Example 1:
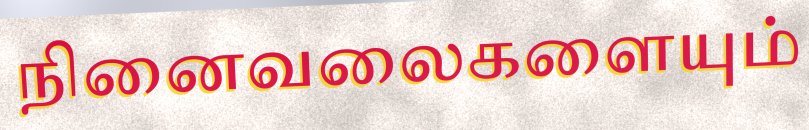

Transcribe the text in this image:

நினைவலைகளையும்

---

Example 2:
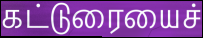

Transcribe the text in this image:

கட்டுரையைச்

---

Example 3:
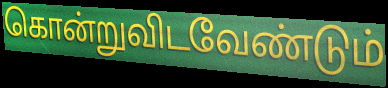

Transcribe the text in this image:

கொன்றுவிடவேண்டும்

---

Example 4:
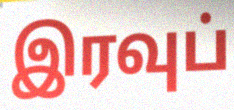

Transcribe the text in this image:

இரவுப்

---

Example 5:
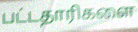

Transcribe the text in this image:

பட்டதாரிகளை